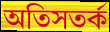
অতিসতর্ক